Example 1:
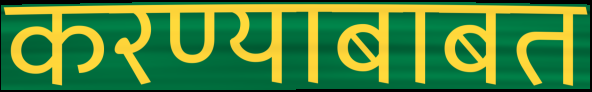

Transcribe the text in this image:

करण्याबाबत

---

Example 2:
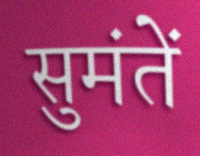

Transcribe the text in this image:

सुमंतें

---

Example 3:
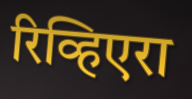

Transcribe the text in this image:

रिव्हिएरा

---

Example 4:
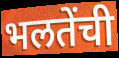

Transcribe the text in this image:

भलतेंची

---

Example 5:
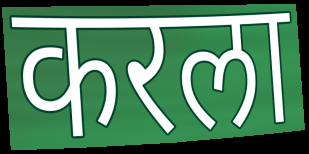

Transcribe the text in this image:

करला